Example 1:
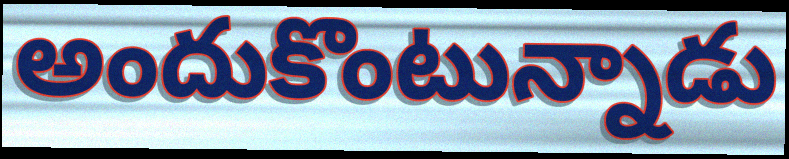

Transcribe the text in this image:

అందుకొంటున్నాడు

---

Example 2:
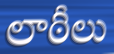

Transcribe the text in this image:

లాఠీలు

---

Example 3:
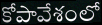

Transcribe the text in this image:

కోపావేశంలో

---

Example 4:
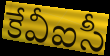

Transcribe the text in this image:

కేవీఐసీ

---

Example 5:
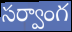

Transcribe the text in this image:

సర్వాంగ